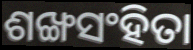
ଶଙ୍ଖସଂହିତା